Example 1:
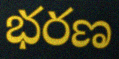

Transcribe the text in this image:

భరణ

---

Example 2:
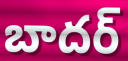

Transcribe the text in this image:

బాదర్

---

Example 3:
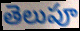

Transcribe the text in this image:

తెలుపూ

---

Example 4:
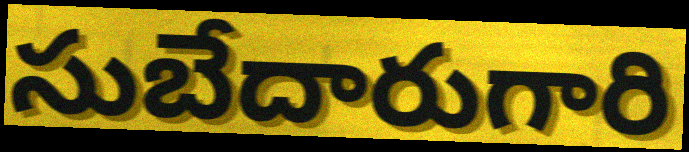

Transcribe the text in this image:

సుబేదారుగారి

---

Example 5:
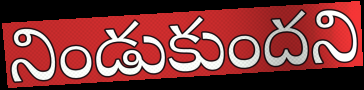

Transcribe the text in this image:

నిండుకుందని